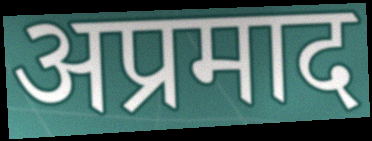
अप्रमाद